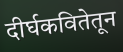
दीर्घकवितेतून